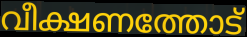
വീക്ഷണത്തോട്